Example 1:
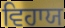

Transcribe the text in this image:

ਵਿਹਾਯ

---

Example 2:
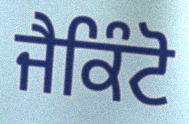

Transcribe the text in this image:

ਜੈਕਿੰਟੋ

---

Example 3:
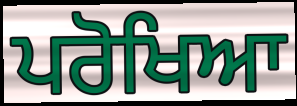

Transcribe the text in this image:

ਪਰੋਖਿਆ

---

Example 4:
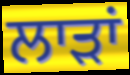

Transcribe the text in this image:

ਲਾੜਾਂ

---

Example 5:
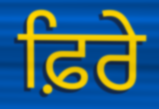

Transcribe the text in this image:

ਫ਼ਿਰੇ